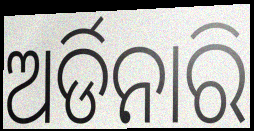
ଅର୍ଡିନାରି